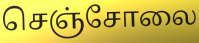
செஞ்சோலை